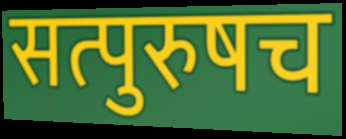
सत्पुरुषच